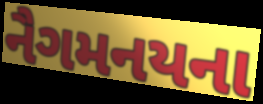
નૈગમનયના